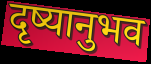
दृष्यानुभव